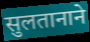
सुलतानाने